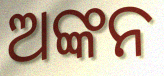
ଅଙ୍କନ